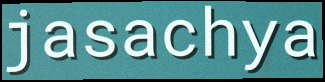
jasachya